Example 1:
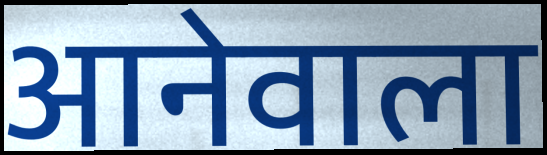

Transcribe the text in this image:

आनेवाला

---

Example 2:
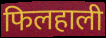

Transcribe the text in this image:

फिलहाली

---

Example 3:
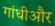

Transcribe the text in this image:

गांधीऔर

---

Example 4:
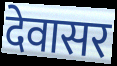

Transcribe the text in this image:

देवासर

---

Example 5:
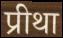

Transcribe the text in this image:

प्रीथा